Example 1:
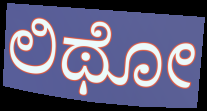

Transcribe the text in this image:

ಲಿಥೋ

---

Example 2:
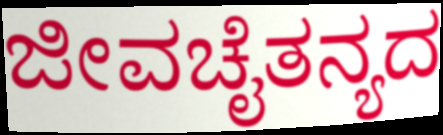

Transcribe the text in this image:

ಜೀವಚೈತನ್ಯದ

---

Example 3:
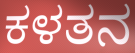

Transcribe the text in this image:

ಕಳತನ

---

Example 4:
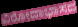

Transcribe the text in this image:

ವಿರೋದಾಭಾಸದ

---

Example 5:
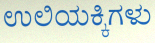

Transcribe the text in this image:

ಉಲಿಯಕ್ಕಿಗಳು